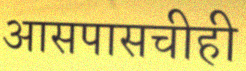
आसपासचीही